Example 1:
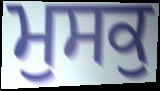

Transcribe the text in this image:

ਮੁਸਕੁ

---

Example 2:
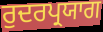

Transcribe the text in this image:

ਰੁਦਰਪ੍ਰਯਾਗ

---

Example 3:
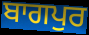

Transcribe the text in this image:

ਬਾਗਪੁਰ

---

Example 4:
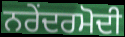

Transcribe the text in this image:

ਨਰੇਂਦਰਮੋਦੀ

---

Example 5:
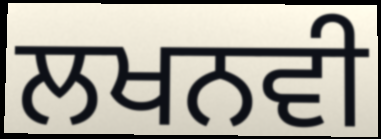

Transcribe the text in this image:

ਲਖਨਵੀ